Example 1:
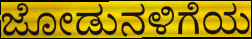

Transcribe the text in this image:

ಜೋಡುನಳಿಗೆಯ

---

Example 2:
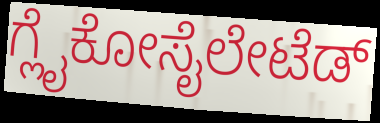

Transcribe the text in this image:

ಗ್ಲೈಕೋಸೈಲೇಟೆಡ್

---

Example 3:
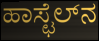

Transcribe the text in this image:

ಹಾಸ್ಟೆಲ್‌ನ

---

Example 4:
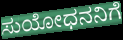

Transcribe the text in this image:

ಸುಯೋಧನನಿಗೆ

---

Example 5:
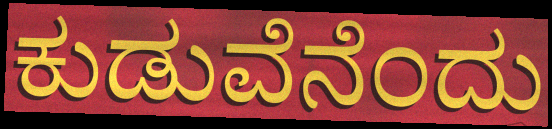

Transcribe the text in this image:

ಕುಡುವೆನೆಂದು